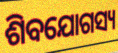
ଶିବଯୋଗସ୍ୟ